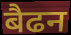
बैढन